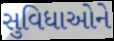
સુવિધાઓને